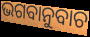
ଭଗବାନୁବାଚ